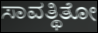
ಸಾವತ್ಥಿತೋ